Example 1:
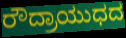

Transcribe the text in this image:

ರೌದ್ರಾಯುಧದ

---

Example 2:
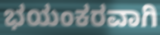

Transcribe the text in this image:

ಭಯಂಕರವಾಗಿ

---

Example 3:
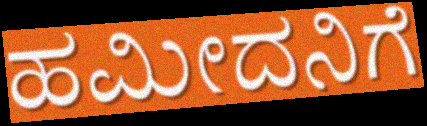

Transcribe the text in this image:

ಹಮೀದನಿಗೆ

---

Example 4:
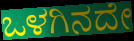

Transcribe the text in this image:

ಒಳಗಿನದೇ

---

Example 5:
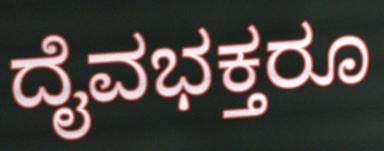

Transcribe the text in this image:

ದೈವಭಕ್ತರೂ